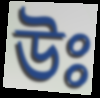
উঃ